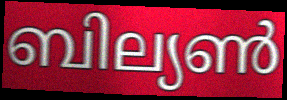
ബില്യൺ